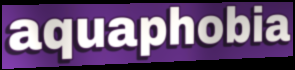
aquaphobia